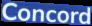
Concord